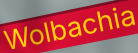
Wolbachia